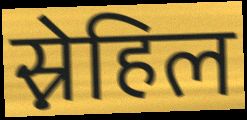
स्नेहिल